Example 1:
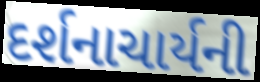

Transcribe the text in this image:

દર્શનાચાર્યની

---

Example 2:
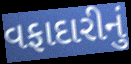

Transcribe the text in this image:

વફાદારીનું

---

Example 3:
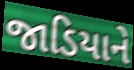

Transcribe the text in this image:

જાડિયાને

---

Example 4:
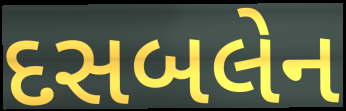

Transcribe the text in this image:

દસબલેન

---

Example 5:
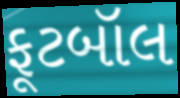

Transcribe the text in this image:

ફૂટબૉલ